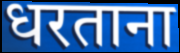
धरताना